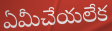
ఏమీచేయలేక